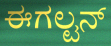
ಈಗಲ್ಟನ್